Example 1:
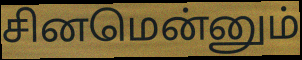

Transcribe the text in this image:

சினமென்னும்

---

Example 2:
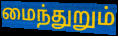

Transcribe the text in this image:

மைந்துறும்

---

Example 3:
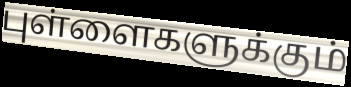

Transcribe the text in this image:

புள்ளைகளுக்கும்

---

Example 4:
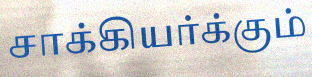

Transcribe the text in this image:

சாக்கியர்க்கும்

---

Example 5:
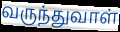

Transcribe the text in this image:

வருந்துவாள்